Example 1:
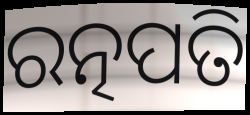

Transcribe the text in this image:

ରତ୍ନପତି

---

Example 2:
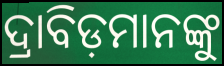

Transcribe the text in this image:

ଦ୍ରାବିଡ଼ମାନଙ୍କୁ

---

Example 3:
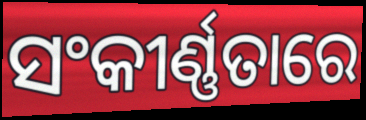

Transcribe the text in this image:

ସଂକୀର୍ଣ୍ଣତାରେ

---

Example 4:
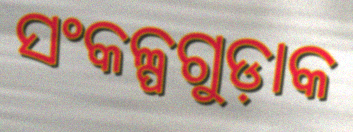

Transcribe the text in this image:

ସଂକଳ୍ପଗୁଡ଼ାକ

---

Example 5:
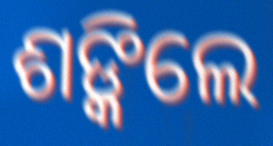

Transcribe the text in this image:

ଶଙ୍କିଲେ